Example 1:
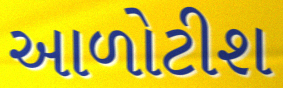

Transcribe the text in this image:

આળોટીશ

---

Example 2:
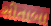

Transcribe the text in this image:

સીતાબા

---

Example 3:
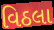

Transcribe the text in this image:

વિઠલા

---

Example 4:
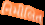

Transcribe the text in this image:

નિમીલિત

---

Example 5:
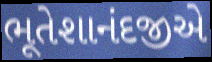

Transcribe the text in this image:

ભૂતેશાનંદજીએ